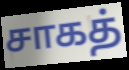
சாகத்